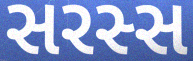
સરસ્સ